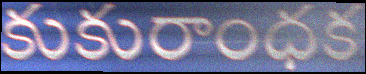
కుకురాంధక